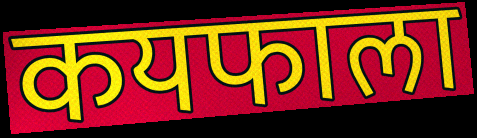
कयफाला